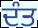
ਦੰਤ